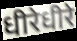
धीरेधीरे